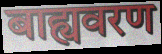
बाह्यवरण